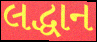
લદ્ધાન